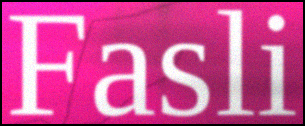
Fasli